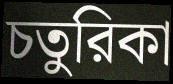
চতুরিকা